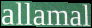
allamal